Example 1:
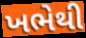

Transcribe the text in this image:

ખભેથી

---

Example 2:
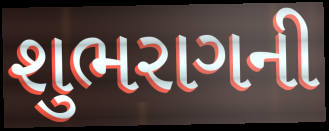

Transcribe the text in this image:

શુભરાગની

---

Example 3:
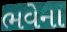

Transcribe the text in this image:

ભવેના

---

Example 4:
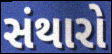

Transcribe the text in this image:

સંથારો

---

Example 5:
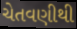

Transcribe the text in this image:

ચેતવણીથી